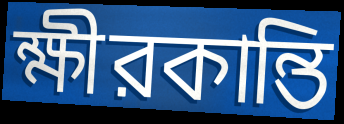
ক্ষীরকান্তি